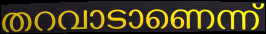
തറവാടാണെന്ന്